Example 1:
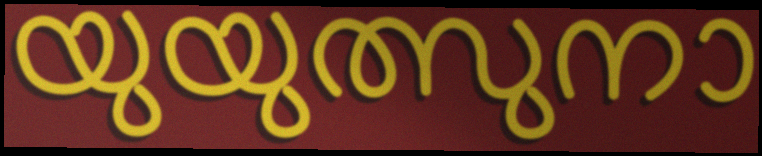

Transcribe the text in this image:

യുയുത്സുനാ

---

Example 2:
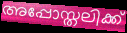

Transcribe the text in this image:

അപ്പോസ്തലിക്ക്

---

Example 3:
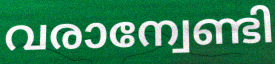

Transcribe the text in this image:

വരാന്വേണ്ടി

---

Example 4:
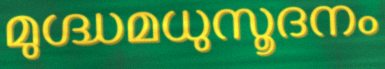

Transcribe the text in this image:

മുഗ്ദ്ധമധുസൂദനം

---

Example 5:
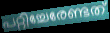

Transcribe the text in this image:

പറ്റിച്ചേരേണ്ടത്